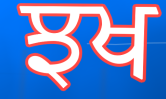
ਝਖ